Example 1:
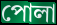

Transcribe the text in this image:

পোলা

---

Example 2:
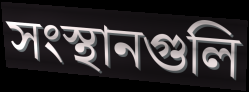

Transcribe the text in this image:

সংস্থানগুলি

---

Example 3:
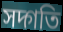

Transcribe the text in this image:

সদ্গতি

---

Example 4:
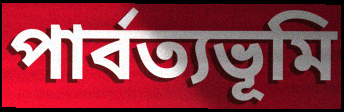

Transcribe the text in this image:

পার্বত্যভূমি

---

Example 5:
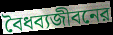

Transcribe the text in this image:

বৈধব্যজীবনের